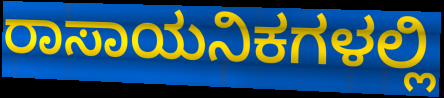
ರಾಸಾಯನಿಕಗಳಲ್ಲಿ